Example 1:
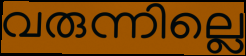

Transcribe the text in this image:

വരുന്നില്ലെ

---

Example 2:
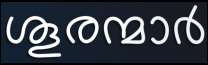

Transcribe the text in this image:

ശൂരന്മാർ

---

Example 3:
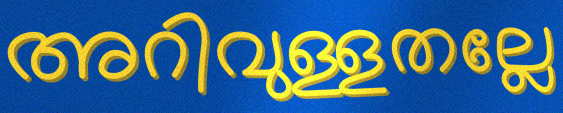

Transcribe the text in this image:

അറിവുള്ളതല്ലേ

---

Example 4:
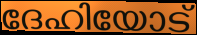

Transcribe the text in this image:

ദേഹിയോട്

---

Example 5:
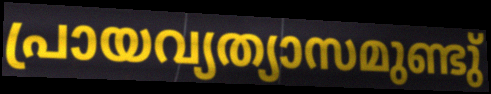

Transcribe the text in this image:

പ്രായവ്യത്യാസമുണ്ടു്